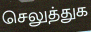
செலுத்துக